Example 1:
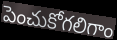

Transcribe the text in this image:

పెంచుకోగలిగాం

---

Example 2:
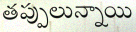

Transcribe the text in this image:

తప్పులున్నాయి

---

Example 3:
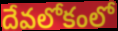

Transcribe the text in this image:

దేవలోకంలో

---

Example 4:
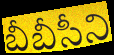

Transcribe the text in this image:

బీబీసీని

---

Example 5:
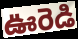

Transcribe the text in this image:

ఊరెడి